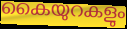
കൈയുറകളും